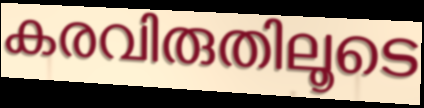
കരവിരുതിലൂടെ